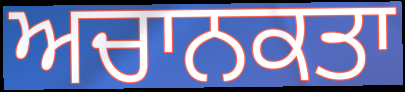
ਅਚਾਨਕਤਾ